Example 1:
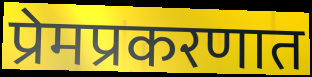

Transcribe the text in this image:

प्रेमप्रकरणात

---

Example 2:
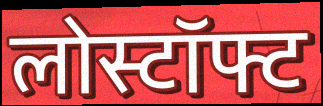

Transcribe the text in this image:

लोस्टॉफ्ट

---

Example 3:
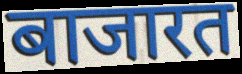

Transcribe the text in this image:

बाजारत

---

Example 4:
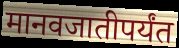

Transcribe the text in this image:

मानवजातीपर्यंत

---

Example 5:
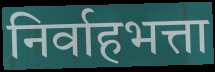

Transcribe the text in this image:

निर्वाहभत्ता